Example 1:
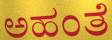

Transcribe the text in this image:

ಅಹಂತೆ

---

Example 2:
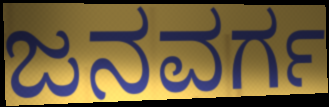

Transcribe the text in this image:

ಜನವರ್ಗ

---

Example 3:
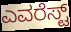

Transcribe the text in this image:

ಎವರೆಸ್ಟ್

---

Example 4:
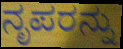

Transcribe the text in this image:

ನೃಪರನ್ನು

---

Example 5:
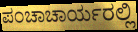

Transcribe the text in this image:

ಪಂಚಾಚಾರ್ಯರಲ್ಲಿ